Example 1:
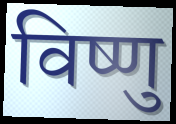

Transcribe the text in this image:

विष्णु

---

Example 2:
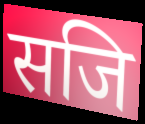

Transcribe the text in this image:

सजि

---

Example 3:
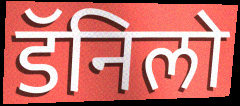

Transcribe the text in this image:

डॅनिलो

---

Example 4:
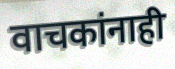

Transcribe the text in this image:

वाचकांनाही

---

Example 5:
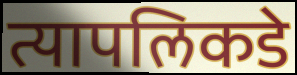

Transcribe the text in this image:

त्यापलिकडे